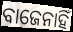
ବାଜେନାହିଁ